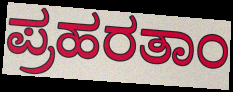
ಪ್ರಹರತಾಂ